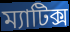
ম্যাটিক্স